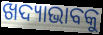
ଖଦ୍ୟାଭାବକୁ